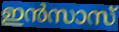
ഇൻസാസ്